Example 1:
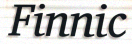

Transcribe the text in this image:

Finnic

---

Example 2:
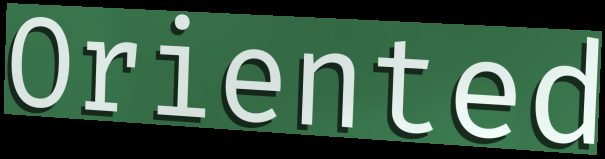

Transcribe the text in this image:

Oriented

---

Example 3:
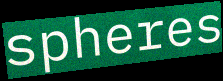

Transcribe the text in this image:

spheres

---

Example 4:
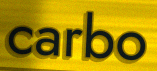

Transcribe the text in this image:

carbo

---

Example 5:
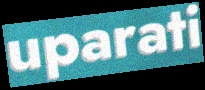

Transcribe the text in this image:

uparati